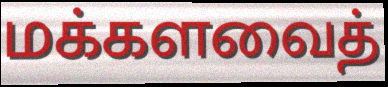
மக்களவைத்